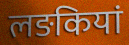
लङकियां